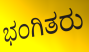
ಭಂಗಿತರು